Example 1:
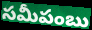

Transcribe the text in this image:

సమీపంబు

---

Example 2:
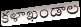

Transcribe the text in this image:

కళాఖండాల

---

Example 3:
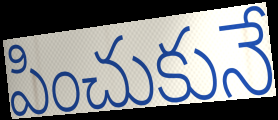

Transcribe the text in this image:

పించుకునే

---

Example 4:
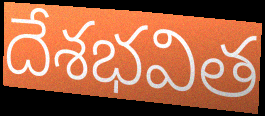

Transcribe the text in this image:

దేశభవిత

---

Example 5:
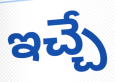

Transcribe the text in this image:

ఇచ్చే